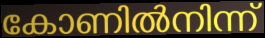
കോണിൽനിന്ന്